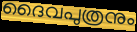
ദൈവപുത്രനും